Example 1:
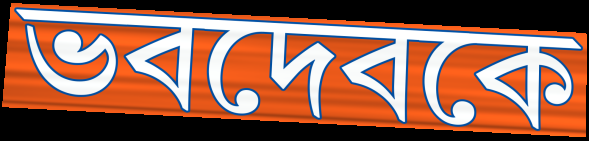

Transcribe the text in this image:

ভবদেবকে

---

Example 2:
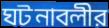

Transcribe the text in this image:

ঘটনাবলীর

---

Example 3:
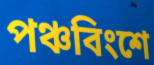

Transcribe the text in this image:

পঞ্চবিংশে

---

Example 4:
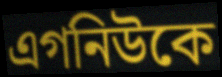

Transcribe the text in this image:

এগনিউকে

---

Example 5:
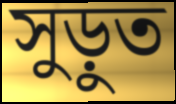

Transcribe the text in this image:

সুড়ুত